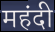
महंदी